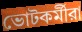
ভোটকর্মীরা